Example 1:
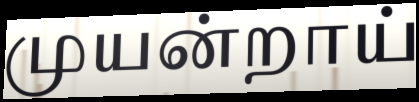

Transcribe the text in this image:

முயன்றாய்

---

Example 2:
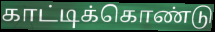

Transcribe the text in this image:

காட்டிக்கொண்டு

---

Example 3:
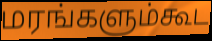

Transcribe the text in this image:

மரங்களும்கூட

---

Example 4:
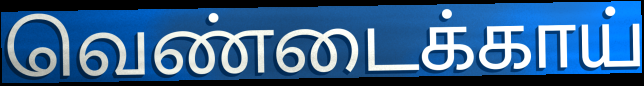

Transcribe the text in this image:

வெண்டைக்காய்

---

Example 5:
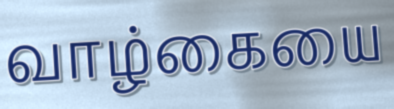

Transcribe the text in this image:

வாழ்கையை